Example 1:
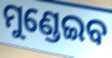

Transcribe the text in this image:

ମୁଣ୍ଡେଇବ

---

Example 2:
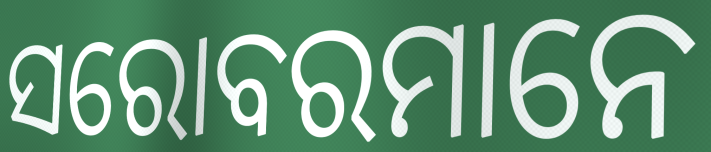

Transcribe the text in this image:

ସରୋବରମାନେ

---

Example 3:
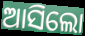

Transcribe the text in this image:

ଆସିଲୋ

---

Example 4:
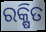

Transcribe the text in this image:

ରକ୍ଷିତ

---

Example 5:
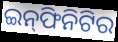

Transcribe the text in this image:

ଇନ୍‌ଫିନିଟିର